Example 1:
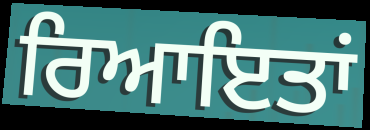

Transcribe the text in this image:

ਰਿਆਇਤਾਂ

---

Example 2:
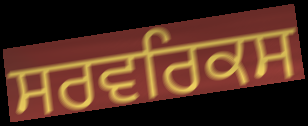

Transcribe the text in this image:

ਸਰਵਰਿਕਸ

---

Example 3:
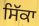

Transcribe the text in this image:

ਸਿੱਕਾ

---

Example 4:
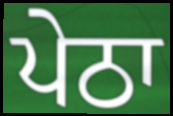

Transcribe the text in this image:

ਪੇਠਾ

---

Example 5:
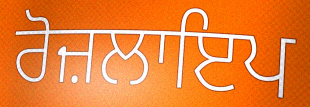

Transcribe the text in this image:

ਰੋਜ਼ਲਾਇਪ